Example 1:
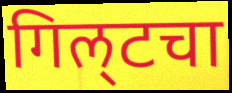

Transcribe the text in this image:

गिल्टचा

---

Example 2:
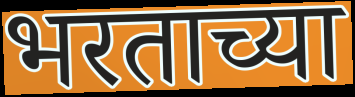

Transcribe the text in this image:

भरताच्या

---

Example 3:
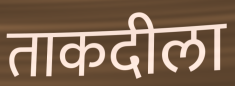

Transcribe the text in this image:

ताकदीला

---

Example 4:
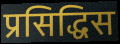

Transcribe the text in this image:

प्रसिद्धिस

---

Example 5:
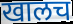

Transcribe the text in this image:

खालच